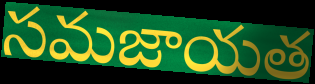
సమజాయత